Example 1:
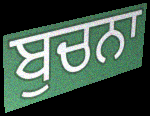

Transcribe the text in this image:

ਬੁਚਨਾ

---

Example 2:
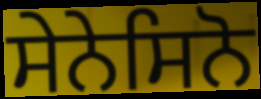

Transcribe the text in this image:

ਸੇਨੇਸਿਨੋ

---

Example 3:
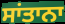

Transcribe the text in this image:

ਸਾਂਤਾਨਾ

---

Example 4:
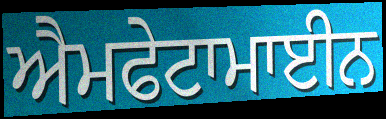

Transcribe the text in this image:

ਐਮਫੇਟਾਮਾਈਨ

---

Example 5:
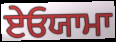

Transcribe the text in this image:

ਏਓਯਾਮਾ